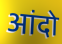
आंदो